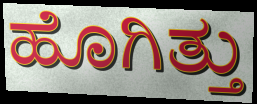
ಹೊಗಿತ್ತು